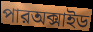
পারঅক্সাইড